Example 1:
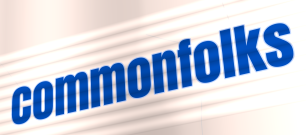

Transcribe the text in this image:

commonfolks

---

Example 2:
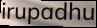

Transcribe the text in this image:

irupadhu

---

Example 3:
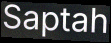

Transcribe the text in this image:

Saptah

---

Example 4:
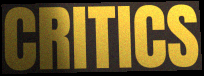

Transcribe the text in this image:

CRITICS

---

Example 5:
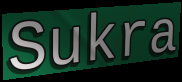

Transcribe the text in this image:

Sukra